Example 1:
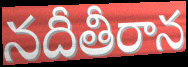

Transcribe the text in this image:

నదీతీరాన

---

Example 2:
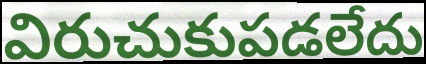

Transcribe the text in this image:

విరుచుకుపడలేదు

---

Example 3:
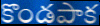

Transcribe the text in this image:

కొండపాక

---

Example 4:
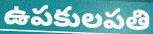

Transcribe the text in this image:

ఉపకులపతి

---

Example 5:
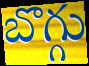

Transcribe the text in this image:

బొగ్గు